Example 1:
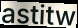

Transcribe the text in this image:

astitw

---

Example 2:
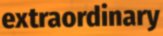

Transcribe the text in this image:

extraordinary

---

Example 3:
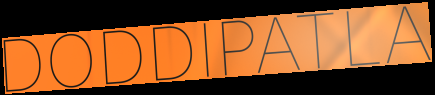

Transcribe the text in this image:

DODDIPATLA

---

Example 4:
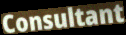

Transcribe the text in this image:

Consultant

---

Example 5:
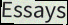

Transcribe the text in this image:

Essays